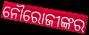
ନୌରୋଜୀଙ୍କର